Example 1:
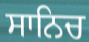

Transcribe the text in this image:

ਸਾਨਿਚ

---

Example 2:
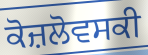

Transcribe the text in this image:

ਕੋਜ਼ਲੋਵਸਕੀ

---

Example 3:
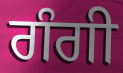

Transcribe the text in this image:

ਗੰਗੀ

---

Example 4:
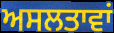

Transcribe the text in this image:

ਅਸਲਤਾਵਾਂ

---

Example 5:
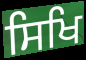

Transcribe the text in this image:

ਸਿਖਿ